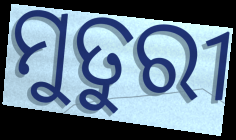
ମୁତୁରୀ